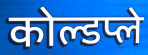
कोल्डप्ले